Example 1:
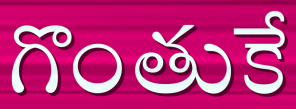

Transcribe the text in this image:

గొంతుకే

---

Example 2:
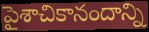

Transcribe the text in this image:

పైశాచికానందాన్ని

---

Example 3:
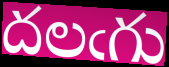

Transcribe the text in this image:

దలఁగు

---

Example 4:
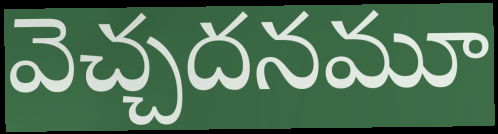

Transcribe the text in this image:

వెచ్చదనమూ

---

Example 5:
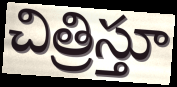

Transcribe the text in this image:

చిత్రిస్తూ